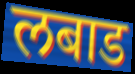
लबाड